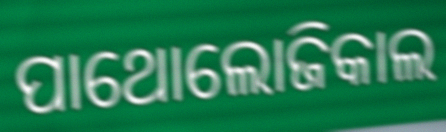
ପାଥୋଲୋଜିକାଲ